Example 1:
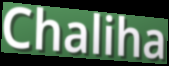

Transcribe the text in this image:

Chaliha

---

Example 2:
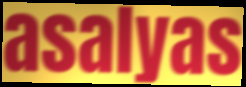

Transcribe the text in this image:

asalyas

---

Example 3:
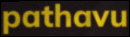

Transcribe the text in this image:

pathavu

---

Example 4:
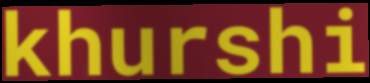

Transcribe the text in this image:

khurshi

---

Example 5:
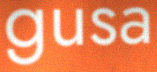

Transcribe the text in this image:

gusa